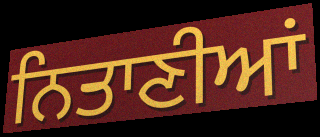
ਨਿਤਾਣੀਆਂ